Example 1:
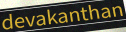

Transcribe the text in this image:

devakanthan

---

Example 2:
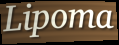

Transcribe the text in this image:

Lipoma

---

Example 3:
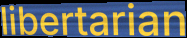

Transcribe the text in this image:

libertarian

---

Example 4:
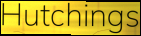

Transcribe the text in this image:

Hutchings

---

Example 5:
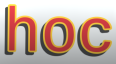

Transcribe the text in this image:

hoc